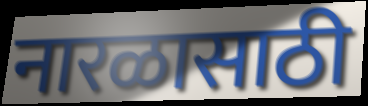
नारळासाठी